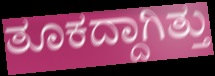
ತೂಕದ್ದಾಗಿತ್ತು